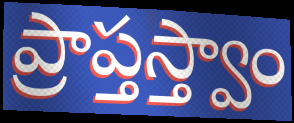
ప్రాప్తస్త్వాం